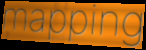
mapping